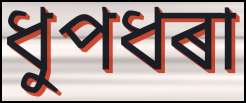
ধুপধৰা